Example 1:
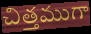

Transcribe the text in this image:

చిత్తముగా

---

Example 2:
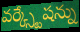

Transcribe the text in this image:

వర్క్స్టేషన్ను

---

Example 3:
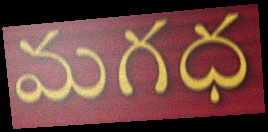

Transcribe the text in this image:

మగధ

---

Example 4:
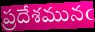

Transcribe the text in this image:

ప్రదేశమునఁ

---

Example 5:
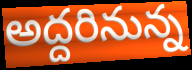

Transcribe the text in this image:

అద్దరినున్న